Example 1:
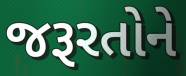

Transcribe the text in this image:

જરૂરતોને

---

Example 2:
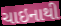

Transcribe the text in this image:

ચાઇનાથી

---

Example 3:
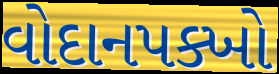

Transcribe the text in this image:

વોદાનપક્ખો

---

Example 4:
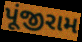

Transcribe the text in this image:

પૂંજીરામ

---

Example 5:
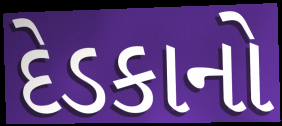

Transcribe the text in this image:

દેડકાનો